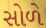
સોળે